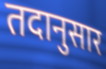
तदानुसार